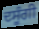
ਦਸੂੰਗੀ